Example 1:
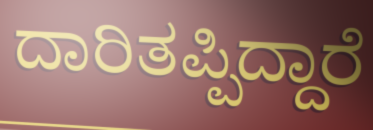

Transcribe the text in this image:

ದಾರಿತಪ್ಪಿದ್ದಾರೆ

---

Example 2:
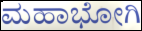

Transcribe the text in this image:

ಮಹಾಭೋಗಿ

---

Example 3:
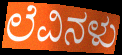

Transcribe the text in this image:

ಲೆವಿನಳು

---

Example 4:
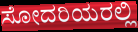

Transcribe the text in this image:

ಸೋದರಿಯರಲ್ಲಿ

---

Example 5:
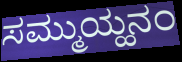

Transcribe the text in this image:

ಸಮ್ಮುಯ್ಹನಂ